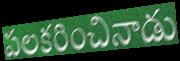
పలకరించినాడు